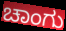
ಚಾಂಗು